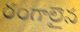
రంగాలైన